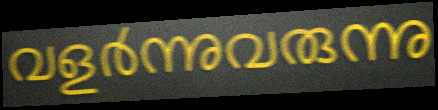
വളർന്നുവരുന്നു